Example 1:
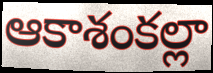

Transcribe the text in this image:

ఆకాశంకల్లా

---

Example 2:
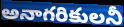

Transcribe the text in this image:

అనాగరికులనీ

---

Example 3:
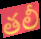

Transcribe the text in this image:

తలీ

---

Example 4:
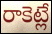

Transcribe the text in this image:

రాకెట్లే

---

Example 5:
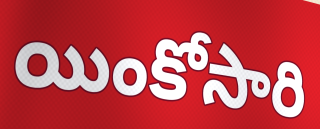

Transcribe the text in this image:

యింకోసారి